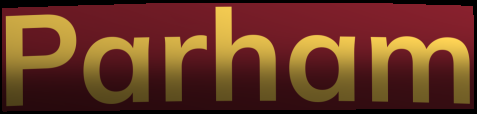
Parham